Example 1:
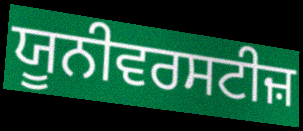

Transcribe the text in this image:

ਯੂਨੀਵਰਸਟੀਜ਼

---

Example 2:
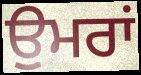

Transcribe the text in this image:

ਉੁਮਰਾਂ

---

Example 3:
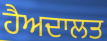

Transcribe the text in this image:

ਹੈਅਦਾਲਤ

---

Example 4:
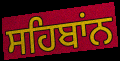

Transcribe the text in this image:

ਸਹਿਬਾਂਨ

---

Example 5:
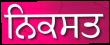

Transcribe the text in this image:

ਨਿਕਸਤ